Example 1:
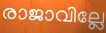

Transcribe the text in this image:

രാജാവില്ലേ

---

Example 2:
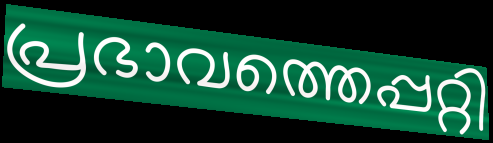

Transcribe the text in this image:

പ്രഭാവത്തെപ്പറ്റി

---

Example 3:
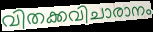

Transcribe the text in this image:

വിതക്കവിചാരാനം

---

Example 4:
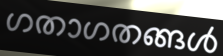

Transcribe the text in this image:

ഗതാഗതങ്ങൾ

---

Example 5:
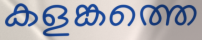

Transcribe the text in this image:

കളങ്കത്തെ